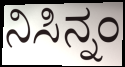
ನಿಸಿನ್ನಂ